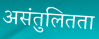
असंतुलितता